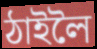
ঠাইলৈ